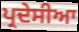
ਪ੍ਰਦੇਸੀਆ